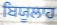
ਬਿਯੂਲਾਹ